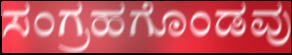
ಸಂಗ್ರಹಗೊಂಡವು